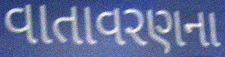
વાતાવરણના